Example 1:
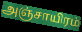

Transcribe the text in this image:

அஞ்சாயிரம்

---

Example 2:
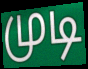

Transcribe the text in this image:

முடி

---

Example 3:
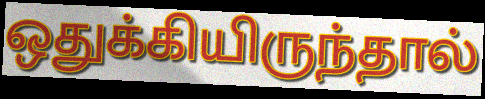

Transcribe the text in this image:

ஒதுக்கியிருந்தால்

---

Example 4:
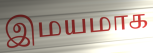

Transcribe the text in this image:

இமயமாக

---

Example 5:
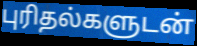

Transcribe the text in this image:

புரிதல்களுடன்